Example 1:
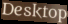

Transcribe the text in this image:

Desktop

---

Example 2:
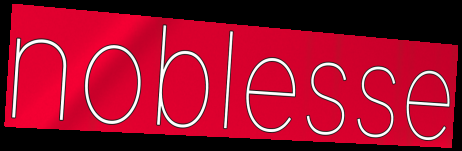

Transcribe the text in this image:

noblesse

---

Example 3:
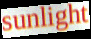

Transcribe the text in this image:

sunlight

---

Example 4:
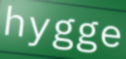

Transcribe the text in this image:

hygge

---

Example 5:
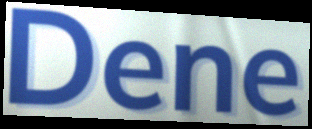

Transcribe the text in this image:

Dene